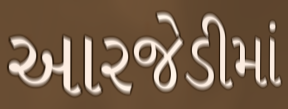
આરજેડીમાં